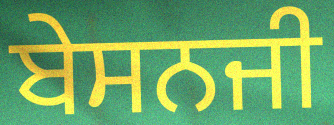
ਬੇਸਨਜੀ